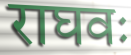
राघवः